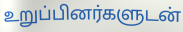
உறுப்பினர்களுடன்